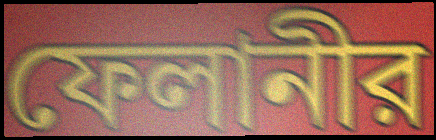
ফেলানীর